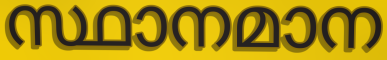
സ്ഥാനമാന